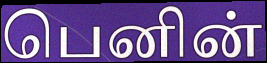
பெனின்